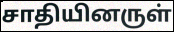
சாதியினருள்